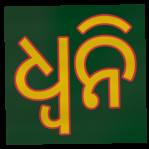
ଧ୍ୱନି